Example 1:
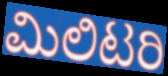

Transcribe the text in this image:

ಮಿಲಿಟರಿ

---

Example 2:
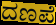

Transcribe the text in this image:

ದಣಪೆ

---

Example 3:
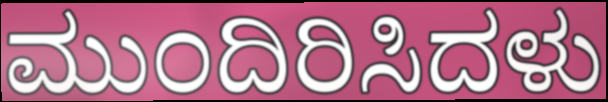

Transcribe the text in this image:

ಮುಂದಿರಿಸಿದಳು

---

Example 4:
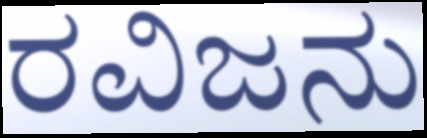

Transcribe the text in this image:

ರವಿಜನು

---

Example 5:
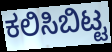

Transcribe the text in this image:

ಕಲಿಸಿಬಿಟ್ಟ